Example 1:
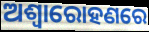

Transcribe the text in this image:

ଅଶ୍ଵାରୋହଣରେ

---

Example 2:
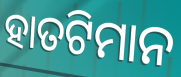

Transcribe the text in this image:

ହାତଟିମାନ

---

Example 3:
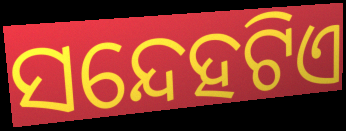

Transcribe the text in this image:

ସନ୍ଦେହଟିଏ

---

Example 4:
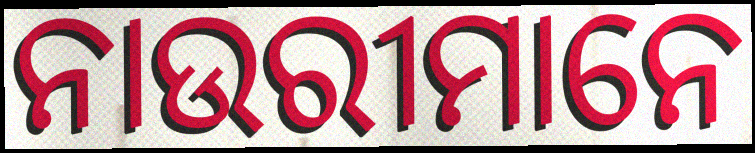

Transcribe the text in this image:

ନାଉରୀମାନେ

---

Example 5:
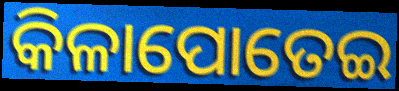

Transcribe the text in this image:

କିଳାପୋତେଇ